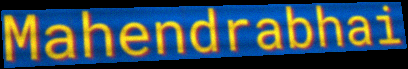
Mahendrabhai